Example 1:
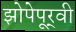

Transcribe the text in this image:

झोपेपूर्वी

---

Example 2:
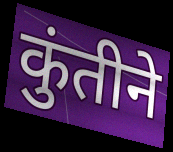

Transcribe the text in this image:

कुंतीने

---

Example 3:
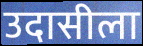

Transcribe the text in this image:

उदासीला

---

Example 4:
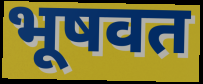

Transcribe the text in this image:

भूषवत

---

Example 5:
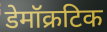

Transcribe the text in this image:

डेमॉक्रटिक